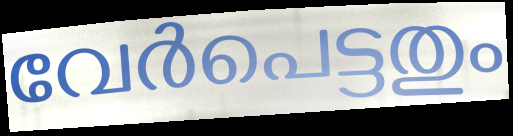
വേർപെട്ടതും